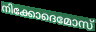
നിക്കോദെമോസ്